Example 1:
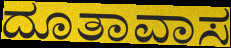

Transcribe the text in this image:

ದೂತಾವಾಸ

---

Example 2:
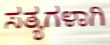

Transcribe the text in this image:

ಸತ್ಯಗಳಾಗಿ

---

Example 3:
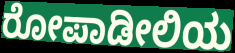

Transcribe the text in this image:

ರೋಪಾಡೀಲಿಯ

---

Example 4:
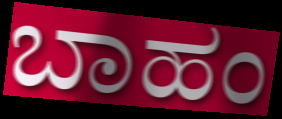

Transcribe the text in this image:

ಬಾಹಂ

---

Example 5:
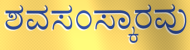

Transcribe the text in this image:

ಶವಸಂಸ್ಕಾರವು